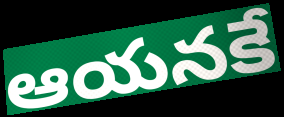
ఆయనకే